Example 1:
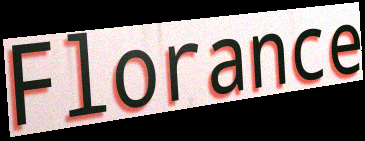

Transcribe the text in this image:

Florance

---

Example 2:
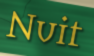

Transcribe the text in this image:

Nuit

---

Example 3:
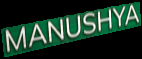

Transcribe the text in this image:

MANUSHYA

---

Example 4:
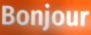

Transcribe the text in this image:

Bonjour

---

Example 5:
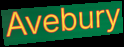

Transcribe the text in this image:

Avebury